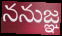
ననుజ్ఞ